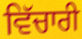
ਵਿੱਚਾਰੀ